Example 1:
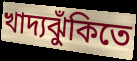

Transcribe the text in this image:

খাদ্যঝুঁকিতে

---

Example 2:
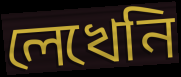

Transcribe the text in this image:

লেখেনি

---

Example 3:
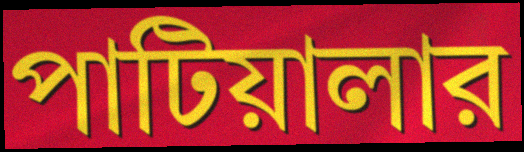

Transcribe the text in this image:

পাটিয়ালার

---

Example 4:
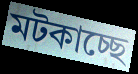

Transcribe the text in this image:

মটকাচ্ছে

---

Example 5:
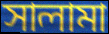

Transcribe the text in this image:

সালামা